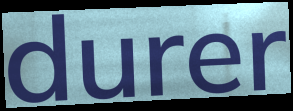
durer